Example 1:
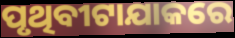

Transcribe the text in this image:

ପୃଥିବୀଟାଯାକରେ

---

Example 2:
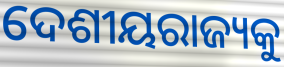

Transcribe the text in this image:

ଦେଶୀୟରାଜ୍ୟକୁ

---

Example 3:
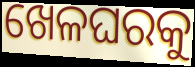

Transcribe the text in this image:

ଖେଳଘରକୁ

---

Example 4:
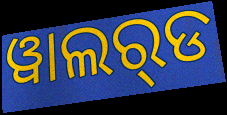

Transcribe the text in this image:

ୱାଲର୍‌ଡ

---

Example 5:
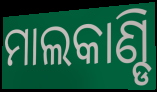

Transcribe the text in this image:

ମାଲକାଣ୍ଡି